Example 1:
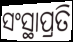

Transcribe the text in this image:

ସଂସ୍ଥାପ୍ରତି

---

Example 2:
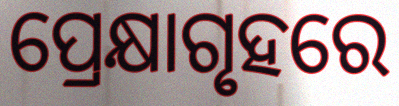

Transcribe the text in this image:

ପ୍ରେକ୍ଷାଗୃହରେ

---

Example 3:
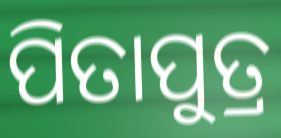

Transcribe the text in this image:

ପିତାପୁତ୍ର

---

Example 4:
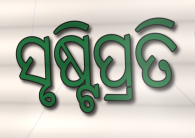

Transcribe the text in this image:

ସୃଷ୍ଟିପ୍ରତି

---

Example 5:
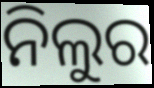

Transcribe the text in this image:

ନିଲୁର